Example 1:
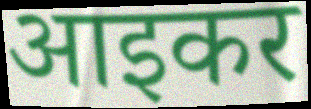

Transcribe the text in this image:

आइकर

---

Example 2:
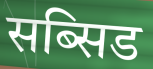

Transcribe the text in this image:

सब्सिड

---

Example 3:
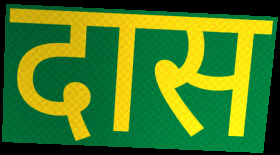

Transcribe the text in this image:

दास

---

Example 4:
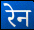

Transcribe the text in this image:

रेन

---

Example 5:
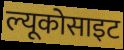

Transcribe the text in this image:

ल्यूकोसाइट